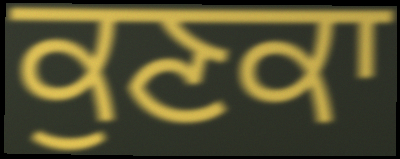
ਕੁਣਕਾ